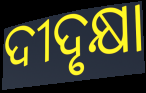
ଦୀଦୃକ୍ଷା